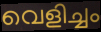
വെളിച്ചം